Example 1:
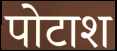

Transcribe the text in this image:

पोटाश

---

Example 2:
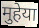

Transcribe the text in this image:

मुहेया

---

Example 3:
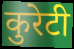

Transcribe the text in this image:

कुरेटी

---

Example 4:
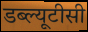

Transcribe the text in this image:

डब्ल्यूटीसी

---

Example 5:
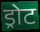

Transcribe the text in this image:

ड्रोट